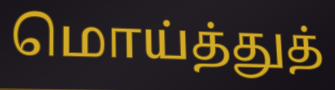
மொய்த்துத்